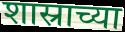
शास्राच्या